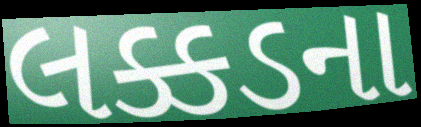
લક્કડના